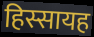
हिस्सायह